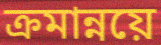
ক্রমান্নয়ে